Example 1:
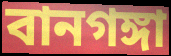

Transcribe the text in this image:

বানগঙ্গা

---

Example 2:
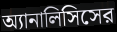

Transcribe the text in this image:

অ্যানালিসিসের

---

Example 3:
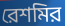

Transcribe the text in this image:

রেশমির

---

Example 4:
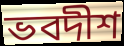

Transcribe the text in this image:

ভবদীশ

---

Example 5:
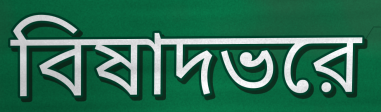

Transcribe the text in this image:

বিষাদভরে